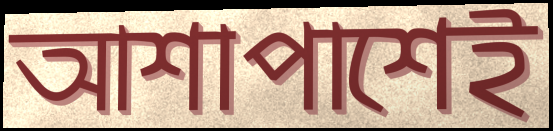
আশাপাশেই